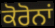
ਕੋਰੋਨਾਂ